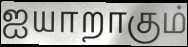
ஐயாறாகும்